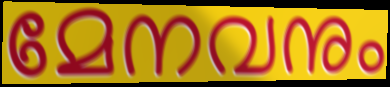
മേനവനും